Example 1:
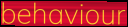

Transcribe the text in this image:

behaviour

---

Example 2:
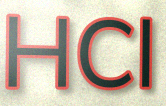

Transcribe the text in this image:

HCl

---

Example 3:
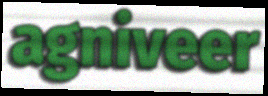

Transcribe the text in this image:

agniveer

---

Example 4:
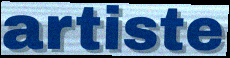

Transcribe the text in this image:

artiste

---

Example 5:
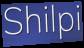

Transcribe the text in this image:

Shilpi